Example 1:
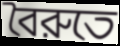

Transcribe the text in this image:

বৈরুতে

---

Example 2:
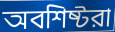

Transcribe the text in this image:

অবশিষ্টরা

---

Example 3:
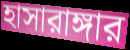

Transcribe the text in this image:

হাসারাঙ্গার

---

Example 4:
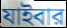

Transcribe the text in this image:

যাইবার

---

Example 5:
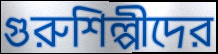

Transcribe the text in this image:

গুরুশিল্পীদের